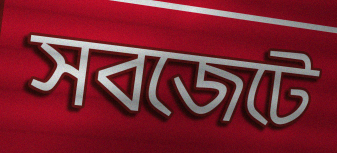
সবজেটে